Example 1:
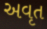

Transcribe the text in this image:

અવૃત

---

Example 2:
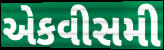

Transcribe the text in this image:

એકવીસમી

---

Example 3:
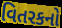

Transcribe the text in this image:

વિતરકનો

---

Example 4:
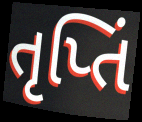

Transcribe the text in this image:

તૃપ્તિં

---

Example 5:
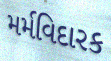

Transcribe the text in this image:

મર્મવિદારક